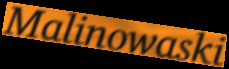
Malinowaski